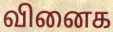
வினைக